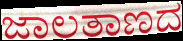
ಜಾಲತಾಣದ